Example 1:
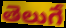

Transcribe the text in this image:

తెలుగే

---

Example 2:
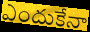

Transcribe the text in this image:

ఎందుకేనా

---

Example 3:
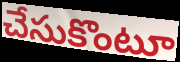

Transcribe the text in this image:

చేసుకొంటూ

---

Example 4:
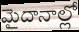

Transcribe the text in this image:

మైదానాల్లో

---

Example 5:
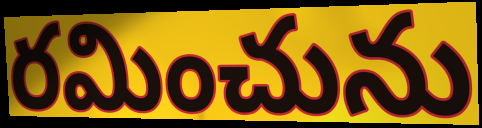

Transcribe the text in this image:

రమించును